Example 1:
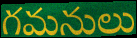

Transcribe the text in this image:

గమనులు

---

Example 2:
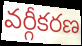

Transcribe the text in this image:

వర్గీకరణ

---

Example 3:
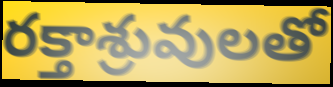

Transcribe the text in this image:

రక్తాశ్రువులతో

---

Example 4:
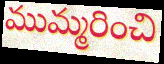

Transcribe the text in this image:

ముమ్మరించి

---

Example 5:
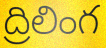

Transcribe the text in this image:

ద్రిలింగ